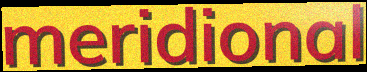
meridional